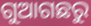
ଗୁଆଗଛରୁ